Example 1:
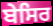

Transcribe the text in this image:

ਬੇਸਿਰ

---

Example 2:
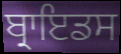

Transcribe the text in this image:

ਬ੍ਰਾਇਡਸ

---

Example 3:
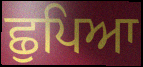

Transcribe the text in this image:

ਛੁਪਿਆ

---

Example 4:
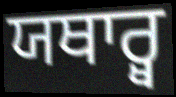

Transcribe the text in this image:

ਯਥਾਰ੍ਥ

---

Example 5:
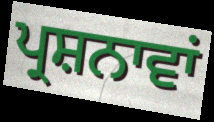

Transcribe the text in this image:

ਪ੍ਰਸ਼ਨਾਵਾਂ